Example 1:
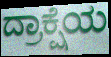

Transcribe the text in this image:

ದ್ರಾಕ್ಷೆಯ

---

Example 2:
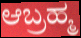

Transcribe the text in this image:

ಆಬ್ರಹ್ಮ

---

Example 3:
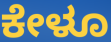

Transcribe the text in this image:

ಕೇಳೂ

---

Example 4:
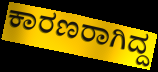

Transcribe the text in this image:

ಕಾರಣರಾಗಿದ್ದ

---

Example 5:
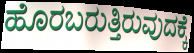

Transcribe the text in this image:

ಹೊರಬರುತ್ತಿರುವುದಕ್ಕೆ